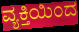
ವ್ಯಕ್ತಿಯಿಂದ